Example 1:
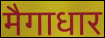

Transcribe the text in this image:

मैगाधार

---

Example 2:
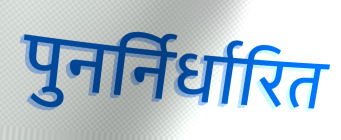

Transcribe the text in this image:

पुनर्निर्धारित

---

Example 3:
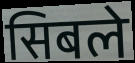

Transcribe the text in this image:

सिबले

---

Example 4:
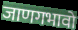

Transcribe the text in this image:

जाणगभावो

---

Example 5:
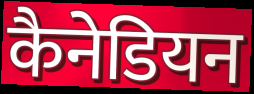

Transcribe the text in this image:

कैनेडियन